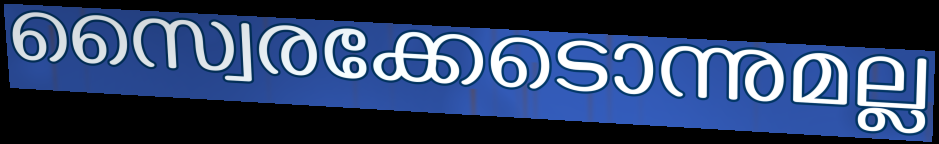
സ്വൈരക്കേടൊന്നുമല്ല